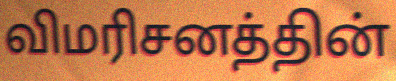
விமரிசனத்தின்